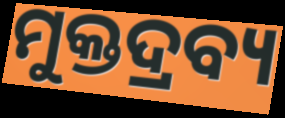
ମୁକ୍ତଦ୍ରବ୍ୟ